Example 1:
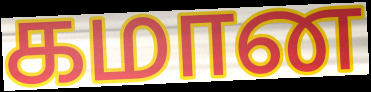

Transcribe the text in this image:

கமான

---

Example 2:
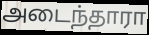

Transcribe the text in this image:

அடைந்தாரா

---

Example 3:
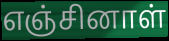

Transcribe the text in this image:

எஞ்சினாள்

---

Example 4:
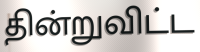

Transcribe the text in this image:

தின்றுவிட்ட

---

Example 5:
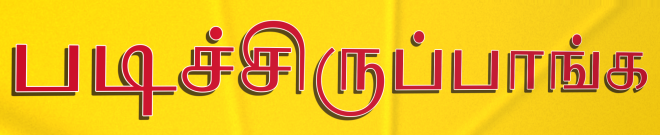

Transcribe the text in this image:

படிச்சிருப்பாங்க